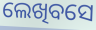
ଲେଖିବସେ